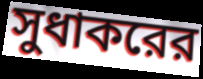
সুধাকরের